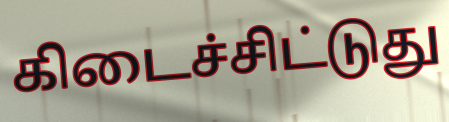
கிடைச்சிட்டுது